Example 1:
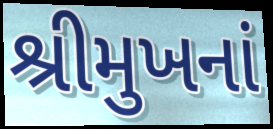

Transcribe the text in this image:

શ્રીમુખનાં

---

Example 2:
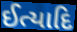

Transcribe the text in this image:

ઈત્યાદિ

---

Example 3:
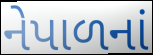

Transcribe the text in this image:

નેપાળનાં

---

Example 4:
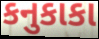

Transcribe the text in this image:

કનુકાકા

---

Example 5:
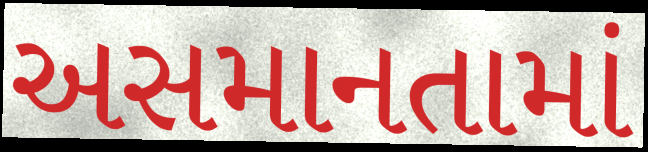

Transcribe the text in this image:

અસમાનતામાં